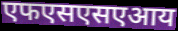
एफएसएसएआय